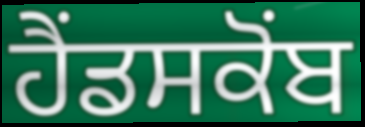
ਹੈਂਡਸਕੋਂਬ